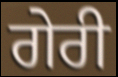
ਗੇਰੀ